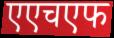
एएचएफ